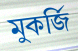
মুকর্জি